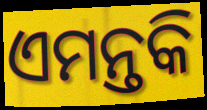
ଏମନ୍ତକି